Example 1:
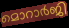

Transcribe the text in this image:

മൊറാർജി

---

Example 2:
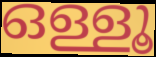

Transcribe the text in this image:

ഒള്ളൂ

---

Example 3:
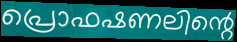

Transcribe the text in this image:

പ്രൊഫഷണലിന്റെ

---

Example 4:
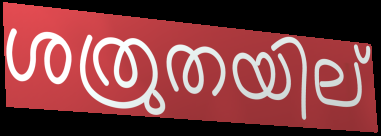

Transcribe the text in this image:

ശത്രുതയില്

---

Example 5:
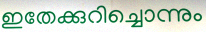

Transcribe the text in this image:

ഇതേക്കുറിച്ചൊന്നും